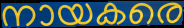
നായകരെ